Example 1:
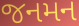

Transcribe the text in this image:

જનમન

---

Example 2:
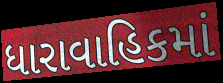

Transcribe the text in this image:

ધારાવાહિકમાં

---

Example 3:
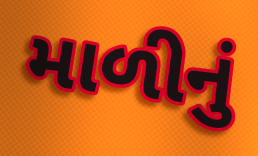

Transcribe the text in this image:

માળીનું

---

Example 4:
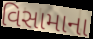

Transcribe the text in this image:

વિસામાના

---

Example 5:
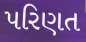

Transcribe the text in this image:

પરિણત